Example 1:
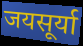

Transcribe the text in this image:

जयसूर्या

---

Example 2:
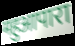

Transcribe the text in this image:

महुआपारा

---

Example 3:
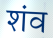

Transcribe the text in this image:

शंव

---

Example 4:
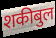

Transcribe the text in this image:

शकीबुल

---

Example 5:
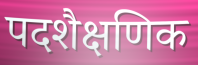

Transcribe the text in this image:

पदशैक्षणिक